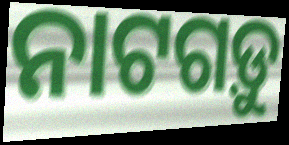
ନାଟଗଡ଼ୁ